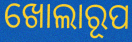
ଖୋଲାରୂପ